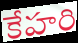
కేహరి